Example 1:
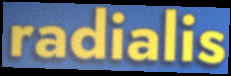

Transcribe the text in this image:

radialis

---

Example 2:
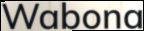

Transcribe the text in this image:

Wabona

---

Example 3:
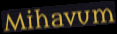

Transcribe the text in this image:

Mihavum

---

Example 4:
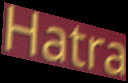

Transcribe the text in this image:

Hatra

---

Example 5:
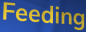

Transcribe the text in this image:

Feeding